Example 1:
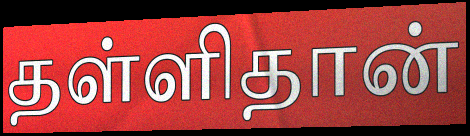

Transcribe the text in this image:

தள்ளிதான்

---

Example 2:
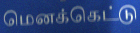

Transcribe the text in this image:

மெனக்கெட்டு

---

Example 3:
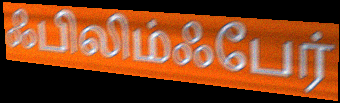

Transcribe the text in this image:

ஃபிலிம்ஃபேர்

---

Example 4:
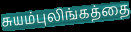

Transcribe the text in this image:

சுயம்புலிங்கத்தை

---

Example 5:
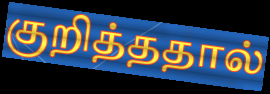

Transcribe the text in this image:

குறித்ததால்